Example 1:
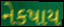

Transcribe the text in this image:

નેકષાય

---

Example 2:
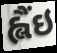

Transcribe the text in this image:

હ્લૈંઇ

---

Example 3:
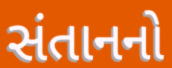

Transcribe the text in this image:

સંતાનનો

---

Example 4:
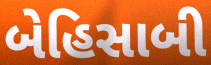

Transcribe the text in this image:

બેહિસાબી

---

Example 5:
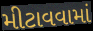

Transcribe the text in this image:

મીટાવવામાં